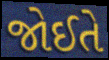
જોઈતે